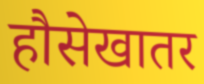
हौसेखातर